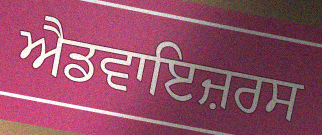
ਐਡਵਾਇਜ਼ਰਸ